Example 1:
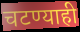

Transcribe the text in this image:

चटण्याही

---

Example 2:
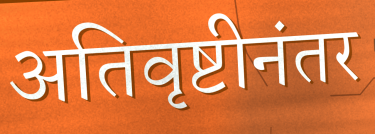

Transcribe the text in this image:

अतिवृष्टीनंतर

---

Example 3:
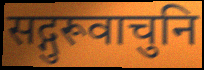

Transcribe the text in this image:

सद्गुरूवाचुनि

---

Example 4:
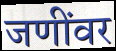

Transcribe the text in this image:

जणींवर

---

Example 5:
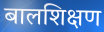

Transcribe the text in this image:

बालशिक्षण